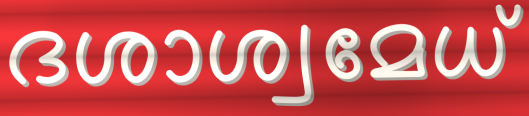
ദശാശ്വമേധ്